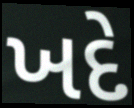
ખદે